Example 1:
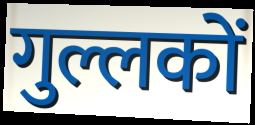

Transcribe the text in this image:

गुल्लकों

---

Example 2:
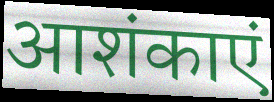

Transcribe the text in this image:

आशंकाएं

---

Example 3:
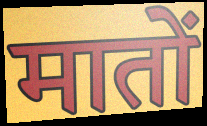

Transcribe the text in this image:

मातों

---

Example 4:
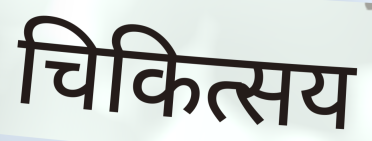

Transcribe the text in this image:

चिकित्सय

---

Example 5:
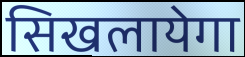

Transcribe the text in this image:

सिखलायेगा